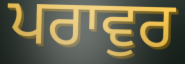
ਪਰਾਵੁਰ